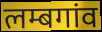
लम्बगांव